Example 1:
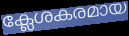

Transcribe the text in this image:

ക്ലേശകരമായ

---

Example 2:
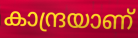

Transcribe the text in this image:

കാന്ദ്രയാണ്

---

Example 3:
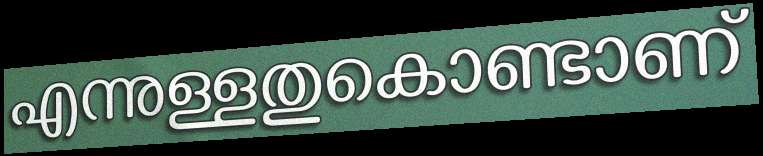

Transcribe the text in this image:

എന്നുള്ളതുകൊണ്ടാണ്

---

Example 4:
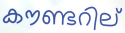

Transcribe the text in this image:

കൗണ്ടറില്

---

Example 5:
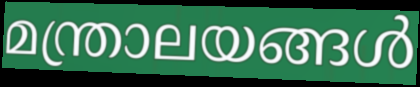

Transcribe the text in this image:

മന്ത്രാലയങ്ങൾ